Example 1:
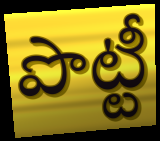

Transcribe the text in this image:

పొట్టీ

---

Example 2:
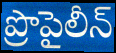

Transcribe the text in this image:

ప్రొపైలీన్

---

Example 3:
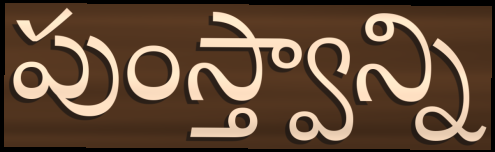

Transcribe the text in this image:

పుంస్త్వాన్ని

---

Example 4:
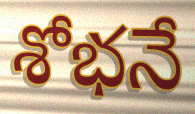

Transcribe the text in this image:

శోభనే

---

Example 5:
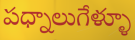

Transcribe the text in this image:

పధ్నాలుగేళ్ళూ